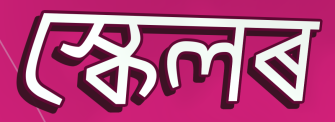
স্কেলৰ